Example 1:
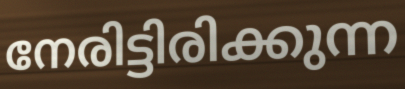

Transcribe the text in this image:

നേരിട്ടിരിക്കുന്ന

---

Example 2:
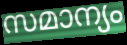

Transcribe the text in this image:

സമാന്യം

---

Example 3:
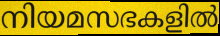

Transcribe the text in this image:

നിയമസഭകളിൽ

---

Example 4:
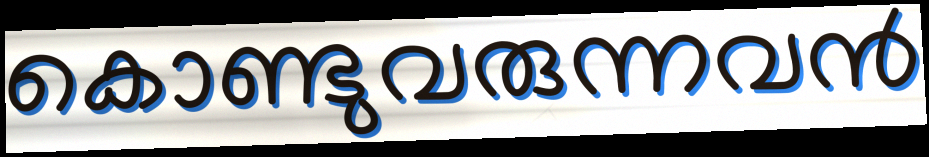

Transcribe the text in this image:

കൊണ്ടുവരുന്നവൻ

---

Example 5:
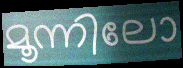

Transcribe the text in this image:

മൂന്നിലോ